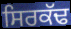
ਸਿਰਕੱਢ